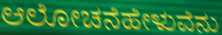
ಆಲೋಚನೆಹೇಳುವೆನು